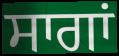
ਸਾਗਾਂ